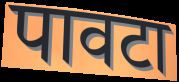
पावटा